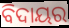
ବିଦାୟର